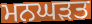
ਮਨਘੜਤ